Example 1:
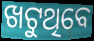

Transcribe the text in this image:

ଖଟୁଥିବେ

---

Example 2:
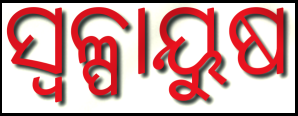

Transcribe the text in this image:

ସ୍ୱଳ୍ପାୟୁଷ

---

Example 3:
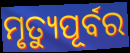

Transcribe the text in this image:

ମୃତ୍ୟୁପୂର୍ବର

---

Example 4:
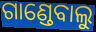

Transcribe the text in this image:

ଗାଣ୍ଡେବାଲୁ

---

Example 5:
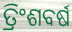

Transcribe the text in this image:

ତ୍ରିଂଶବର୍ଷ